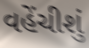
વહેંચીશું